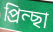
প্রিন্ছা